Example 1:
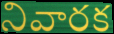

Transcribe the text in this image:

నివారక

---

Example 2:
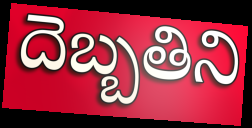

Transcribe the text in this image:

దెబ్బతిని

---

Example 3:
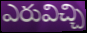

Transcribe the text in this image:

ఎరువిచ్చి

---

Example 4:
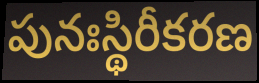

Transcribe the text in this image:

పునఃస్థిరీకరణ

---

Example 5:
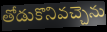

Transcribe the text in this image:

తోడుకొనివచ్చెను